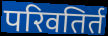
परिवतिर्त